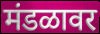
मंडळावर